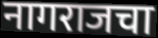
नागराजचा